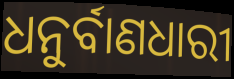
ଧନୁର୍ବାଣଧାରୀ